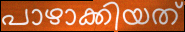
പാഴാക്കിയത്